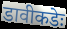
डावीकडेः